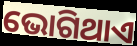
ଭୋଗିଥାଏ